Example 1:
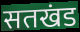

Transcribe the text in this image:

सतखंड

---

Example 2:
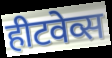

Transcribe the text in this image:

हीटवेव्स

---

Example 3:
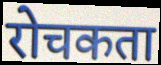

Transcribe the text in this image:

रोचकता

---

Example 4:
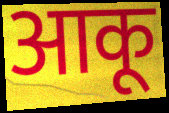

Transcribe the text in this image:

आकू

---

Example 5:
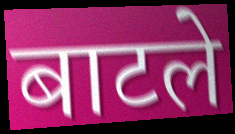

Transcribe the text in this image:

बाटले